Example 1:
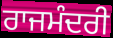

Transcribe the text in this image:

ਰਾਜਮੰਦਰੀ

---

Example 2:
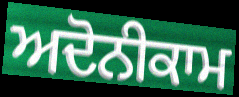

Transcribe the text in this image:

ਅਦੋਨੀਕਾਮ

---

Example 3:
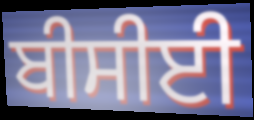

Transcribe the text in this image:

ਬੀਸੀਈ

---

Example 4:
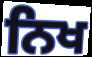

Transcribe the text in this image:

ਨਿਖ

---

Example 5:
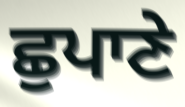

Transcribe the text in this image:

ਛੁਪਾਣੇ